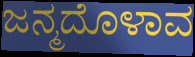
ಜನ್ಮದೊಳಾವ